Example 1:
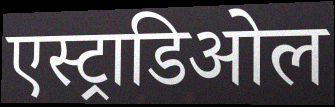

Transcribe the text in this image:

एस्ट्राडिओल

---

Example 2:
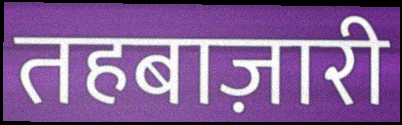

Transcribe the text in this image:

तहबाज़ारी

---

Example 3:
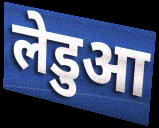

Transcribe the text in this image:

लेडुआ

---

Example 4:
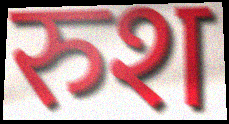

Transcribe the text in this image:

रुश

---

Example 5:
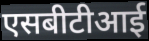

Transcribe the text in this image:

एसबीटीआई